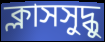
ক্লাসসুদ্ধু